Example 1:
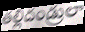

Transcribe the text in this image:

తల్లిదండ్రులా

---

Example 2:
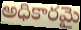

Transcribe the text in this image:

అధికారమై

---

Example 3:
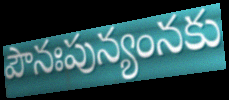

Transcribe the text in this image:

పౌనఃపున్యంనకు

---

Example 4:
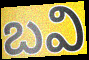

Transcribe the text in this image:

బవి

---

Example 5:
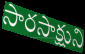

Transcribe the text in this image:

సారసాక్షుని